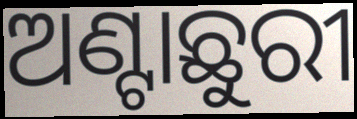
ଅଣ୍ଟାଛୁରୀ